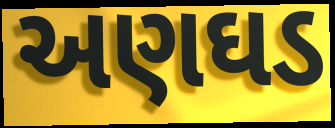
અણઘડ